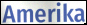
Amerika